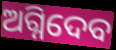
ଅଗ୍ନିଦେବ